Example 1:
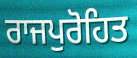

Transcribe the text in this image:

ਰਾਜਪੁਰੋਹਿਤ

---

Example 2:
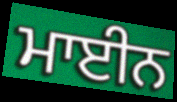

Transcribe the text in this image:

ਮਾਈਨ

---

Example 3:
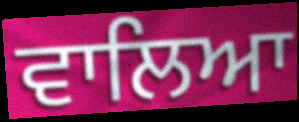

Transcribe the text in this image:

ਵਾਲਿਆ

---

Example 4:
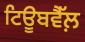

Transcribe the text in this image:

ਟਿਊਬਵੈੱਲ਼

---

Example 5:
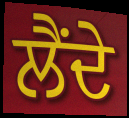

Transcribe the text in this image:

ਲੈਂਦੇ